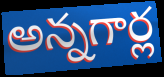
అన్నగార్ల